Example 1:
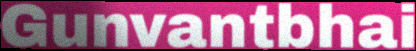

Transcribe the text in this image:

Gunvantbhai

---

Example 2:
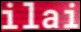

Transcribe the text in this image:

ilai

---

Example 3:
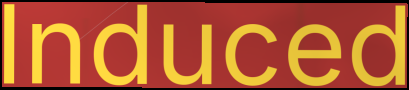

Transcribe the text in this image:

Induced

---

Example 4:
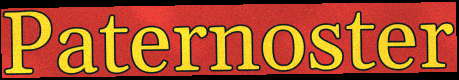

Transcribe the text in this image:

Paternoster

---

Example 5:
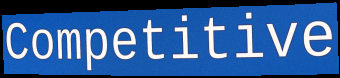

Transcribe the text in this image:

Competitive